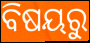
ବିଷୟରୁ